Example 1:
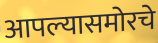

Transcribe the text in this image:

आपल्यासमोरचे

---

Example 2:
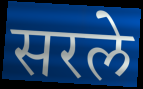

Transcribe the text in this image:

सरले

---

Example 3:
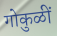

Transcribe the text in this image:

गोकुळीं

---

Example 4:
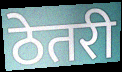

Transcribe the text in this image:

ठेतरी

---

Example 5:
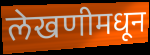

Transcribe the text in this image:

लेखणीमधून